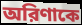
অরিণাকে